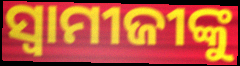
ସ୍ଵାମୀଜୀଙ୍କୁ